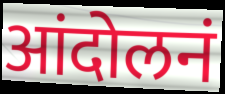
आंदोलनं